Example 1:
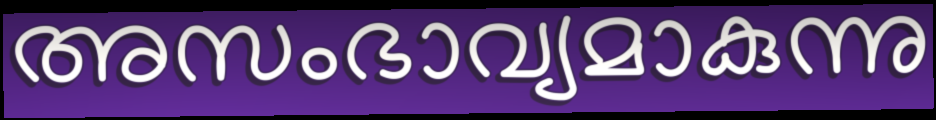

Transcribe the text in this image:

അസംഭാവ്യമാകുന്നു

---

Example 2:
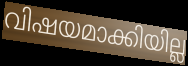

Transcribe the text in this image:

വിഷയമാക്കിയില്ല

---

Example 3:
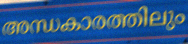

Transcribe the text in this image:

അന്ധകാരത്തിലും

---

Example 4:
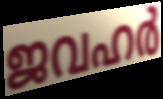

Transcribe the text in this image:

ജവഹർ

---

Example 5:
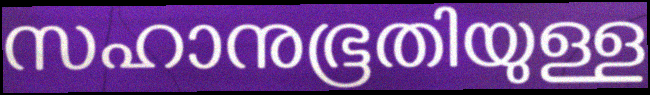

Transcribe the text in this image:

സഹാനുഭൂതിയുള്ള